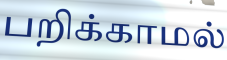
பறிக்காமல்